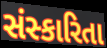
સંસ્કારિતા